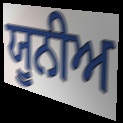
ਯੂਨੀਅ